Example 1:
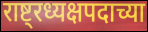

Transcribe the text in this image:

राष्ट्रध्यक्षपदाच्या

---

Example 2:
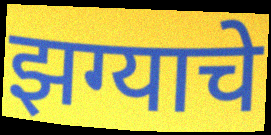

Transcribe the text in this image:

झग्याचे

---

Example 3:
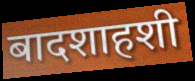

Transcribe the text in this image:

बादशाहशी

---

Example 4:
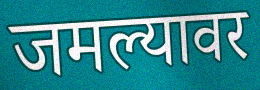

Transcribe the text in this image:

जमल्यावर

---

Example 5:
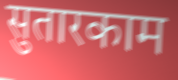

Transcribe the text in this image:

सुतारकाम